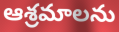
ఆశ్రమాలను